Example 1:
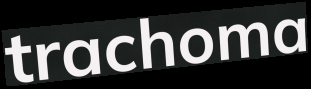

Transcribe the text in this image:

trachoma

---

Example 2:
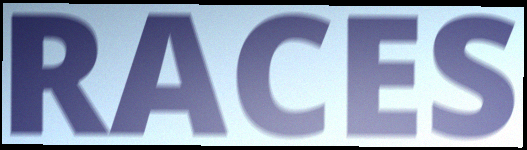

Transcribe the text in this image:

RACES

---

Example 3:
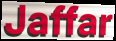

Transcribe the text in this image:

Jaffar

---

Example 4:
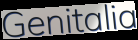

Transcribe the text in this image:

Genitalia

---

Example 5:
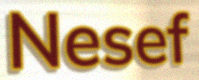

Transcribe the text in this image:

Nesef